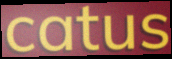
catus